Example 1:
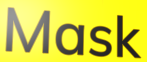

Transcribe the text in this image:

Mask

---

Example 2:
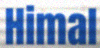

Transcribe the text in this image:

Himal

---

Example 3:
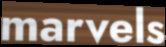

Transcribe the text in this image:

marvels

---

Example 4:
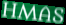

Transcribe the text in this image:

HMAS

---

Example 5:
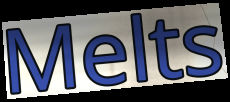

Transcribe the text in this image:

Melts